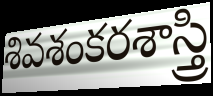
శివశంకరశాస్త్రి